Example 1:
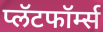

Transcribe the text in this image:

प्लॅटफॉर्म्स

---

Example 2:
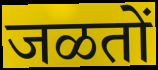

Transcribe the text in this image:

जळतों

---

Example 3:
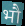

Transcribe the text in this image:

भौ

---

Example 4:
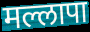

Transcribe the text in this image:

मल्लापा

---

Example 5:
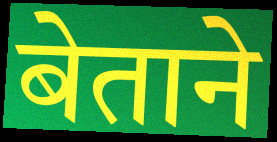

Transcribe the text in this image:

बेताने